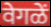
वेगळें